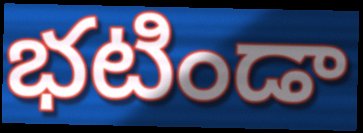
భటిండా